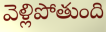
వెళ్లిపోతుంది